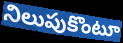
నిలుపుకొంటూ